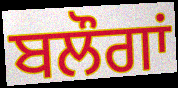
ਬਲੌਗਾਂ